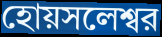
হোয়সলেশ্বর